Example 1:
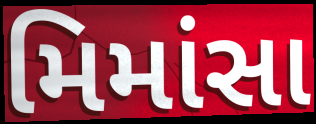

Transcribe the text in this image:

મિમાંસા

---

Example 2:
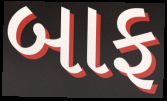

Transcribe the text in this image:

બાફ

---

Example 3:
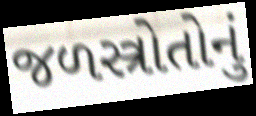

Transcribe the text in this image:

જળસ્ત્રોતોનું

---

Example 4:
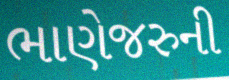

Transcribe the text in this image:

ભાણેજરુની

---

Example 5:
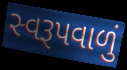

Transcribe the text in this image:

સ્વરૂપવાળું